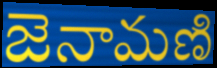
జెనామణి